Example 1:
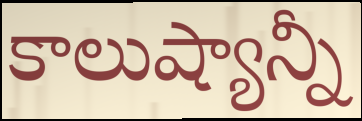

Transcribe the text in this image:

కాలుష్యాన్నీ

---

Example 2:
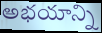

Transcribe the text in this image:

అభయాన్ని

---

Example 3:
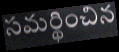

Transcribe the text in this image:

సమర్థించిన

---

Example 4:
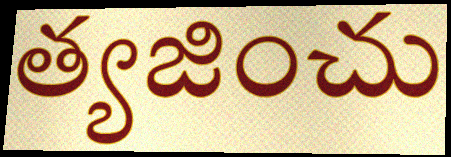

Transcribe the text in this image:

త్యజించు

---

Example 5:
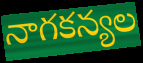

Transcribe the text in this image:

నాగకన్యల